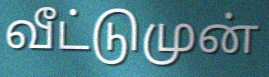
வீட்டுமுன்